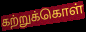
கற்றுக்கொள்